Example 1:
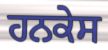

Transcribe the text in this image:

ਹਨਕੇਸ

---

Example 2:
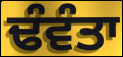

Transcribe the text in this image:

ਢੰਵੰਤਾ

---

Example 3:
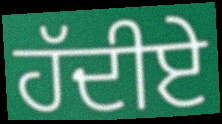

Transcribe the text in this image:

ਹੱਦੀਏ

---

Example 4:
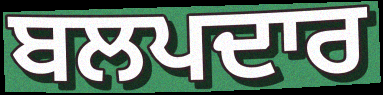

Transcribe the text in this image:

ਬਲਪਦਾਰ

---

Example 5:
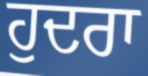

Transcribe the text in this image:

ਹੁਦਰਾ